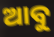
ଆବୁ